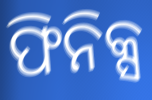
ଫିନିକ୍ସ